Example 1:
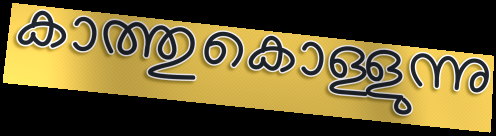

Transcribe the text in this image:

കാത്തുകൊള്ളുന്നു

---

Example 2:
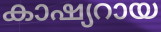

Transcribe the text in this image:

കാഷ്യറായ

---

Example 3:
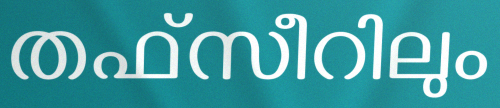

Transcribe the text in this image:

തഫ്സീറിലും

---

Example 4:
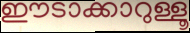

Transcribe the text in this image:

ഈടാക്കാറുള്ളൂ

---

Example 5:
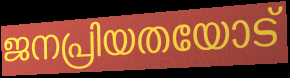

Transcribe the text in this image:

ജനപ്രിയതയോട്